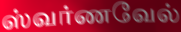
ஸ்வர்ணவேல்